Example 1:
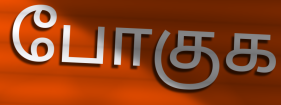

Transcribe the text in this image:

போகுக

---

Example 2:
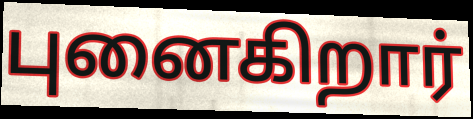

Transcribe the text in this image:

புனைகிறார்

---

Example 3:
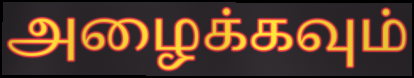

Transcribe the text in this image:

அழைக்கவும்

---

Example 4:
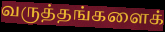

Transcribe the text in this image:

வருத்தங்களைக்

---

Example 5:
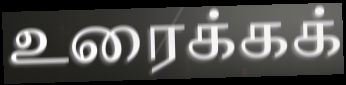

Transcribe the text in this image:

உரைக்கக்